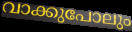
വാക്കുപോലും